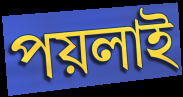
পয়লাই